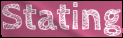
Stating